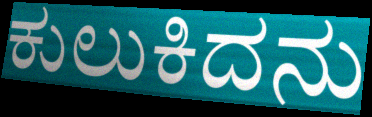
ಕುಲುಕಿದನು